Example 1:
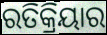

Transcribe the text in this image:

ରତିକ୍ରିୟାର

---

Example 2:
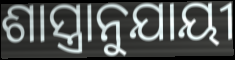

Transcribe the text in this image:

ଶାସ୍ତ୍ରାନୁଯାୟୀ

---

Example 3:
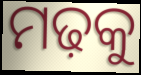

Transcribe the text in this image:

ମଢ଼କୁ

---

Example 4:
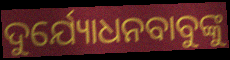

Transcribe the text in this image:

ଦୁର୍ଯ୍ୟୋଧନବାବୁଙ୍କୁ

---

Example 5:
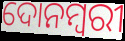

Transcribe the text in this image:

ଦୋନମ୍ବରୀ